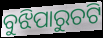
ବୁଝିପାରୁଚଟି